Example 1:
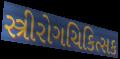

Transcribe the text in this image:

સ્ત્રીરોગચિકિત્સક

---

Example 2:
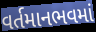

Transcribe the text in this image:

વર્તમાનભવમાં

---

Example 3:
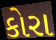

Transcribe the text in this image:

કોરા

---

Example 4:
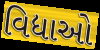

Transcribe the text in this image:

વિદ્યાઓ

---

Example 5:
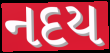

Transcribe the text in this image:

નદય